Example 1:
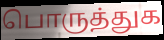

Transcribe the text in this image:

பொருத்துக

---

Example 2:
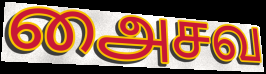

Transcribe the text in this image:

அைசவ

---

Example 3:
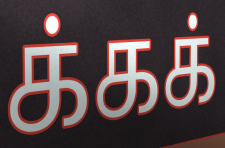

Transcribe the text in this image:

க்கக்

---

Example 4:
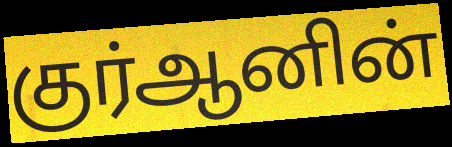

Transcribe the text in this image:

குர்ஆனின்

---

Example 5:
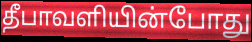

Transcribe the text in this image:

தீபாவளியின்போது